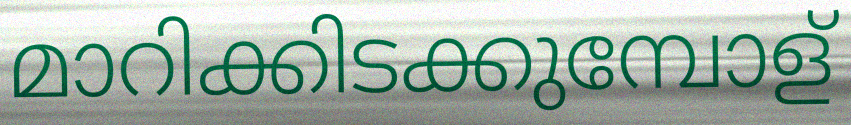
മാറിക്കിടക്കുമ്പോള്